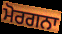
ਮੋਰਗਨਾ